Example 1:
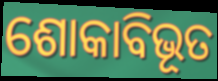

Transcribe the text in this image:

ଶୋକାବିଭୂତ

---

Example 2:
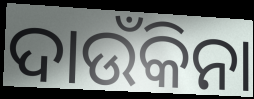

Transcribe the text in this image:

ଦାଉଁକିନା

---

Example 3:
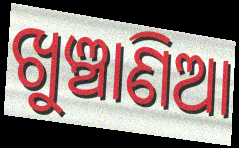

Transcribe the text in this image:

ଖୁଞ୍ଚାଣିଆ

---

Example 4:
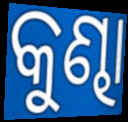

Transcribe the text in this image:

କୁଣ୍ଢା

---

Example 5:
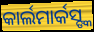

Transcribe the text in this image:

କାର୍ଲମାର୍କସ୍ଙ୍କ